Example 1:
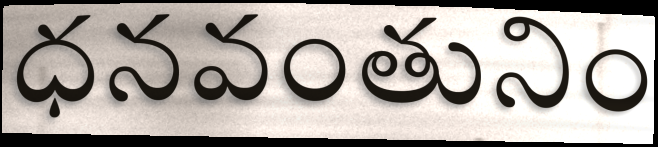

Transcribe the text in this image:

ధనవంతునిం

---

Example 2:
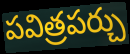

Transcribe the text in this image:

పవిత్రపర్చు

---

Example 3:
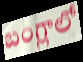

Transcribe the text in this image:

బంగ్లాలో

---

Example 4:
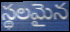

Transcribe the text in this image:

స్థలమైన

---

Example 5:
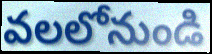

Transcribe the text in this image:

వలలోనుండి